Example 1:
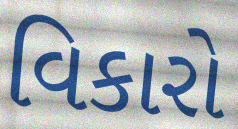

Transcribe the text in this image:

વિકારો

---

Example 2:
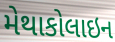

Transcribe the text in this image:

મેથાકોલાઇન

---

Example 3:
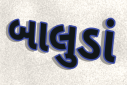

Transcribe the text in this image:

બાલુડાં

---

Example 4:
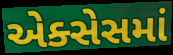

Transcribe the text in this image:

એક્સેસમાં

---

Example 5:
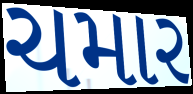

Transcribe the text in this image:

ચમાર